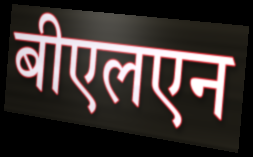
बीएलएन